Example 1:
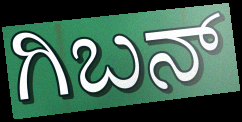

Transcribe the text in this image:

ಗಿಬನ್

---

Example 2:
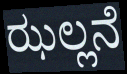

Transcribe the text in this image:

ಝಲ್ಲನೆ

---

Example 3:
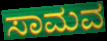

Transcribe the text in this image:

ಸಾಮವ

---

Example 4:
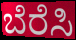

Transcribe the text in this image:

ಬೆರೆಸಿ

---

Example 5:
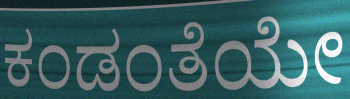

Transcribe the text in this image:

ಕಂಡಂತೆಯೇ